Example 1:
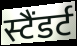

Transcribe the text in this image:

स्टैंडर्ट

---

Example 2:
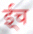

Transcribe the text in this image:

ई्च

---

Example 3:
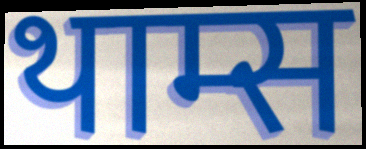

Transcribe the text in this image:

थाम्स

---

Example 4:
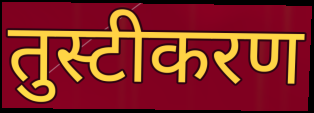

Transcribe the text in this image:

तुस्टीकरण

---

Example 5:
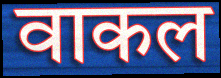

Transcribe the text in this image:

वाकल